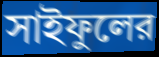
সাইফুলের